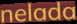
nelada